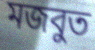
মজবুত